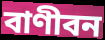
বাণীবন